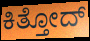
ಕಿತ್ತೋದ್